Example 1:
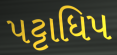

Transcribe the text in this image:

પટ્ટાધિપ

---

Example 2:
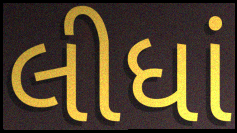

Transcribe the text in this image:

લીધાં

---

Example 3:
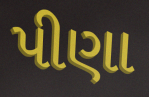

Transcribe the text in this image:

પીણા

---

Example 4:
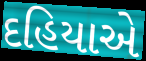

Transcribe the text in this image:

દહિયાએ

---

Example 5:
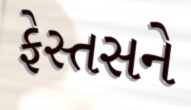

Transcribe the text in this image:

ફેસ્તસને